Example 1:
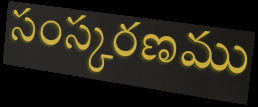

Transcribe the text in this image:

సంస్కరణము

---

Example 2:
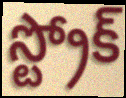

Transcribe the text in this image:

స్ట్రోక్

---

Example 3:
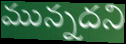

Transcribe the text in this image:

మున్నదని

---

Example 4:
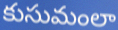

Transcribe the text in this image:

కుసుమంలా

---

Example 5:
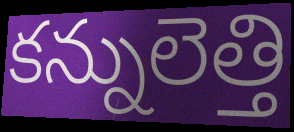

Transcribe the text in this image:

కన్నులెత్తి